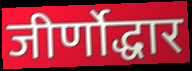
जीर्णोद्धार